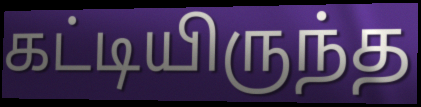
கட்டியிருந்த